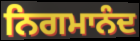
ਨਿਗਮਾਨੰਦ